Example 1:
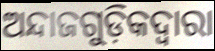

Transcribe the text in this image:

ଅନ୍ଦାଜଗୁଡ଼ିକଦ୍ୱାରା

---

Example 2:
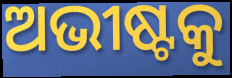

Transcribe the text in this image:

ଅଭୀଷ୍ଟକୁ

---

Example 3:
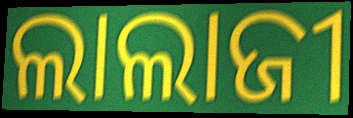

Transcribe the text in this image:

ଲାଲାଜୀ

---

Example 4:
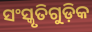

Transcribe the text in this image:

ସଂସ୍କୃତିଗୁଡ଼ିକ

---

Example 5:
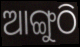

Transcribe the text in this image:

ଆଙ୍ଗୁଠି